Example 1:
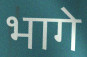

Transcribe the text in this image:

भागे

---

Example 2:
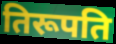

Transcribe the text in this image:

तिरूपति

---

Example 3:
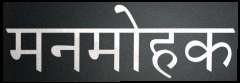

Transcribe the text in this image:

मनमोहक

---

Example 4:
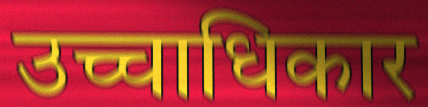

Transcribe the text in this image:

उच्‍चाधिकार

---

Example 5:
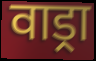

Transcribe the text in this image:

वाड्रा